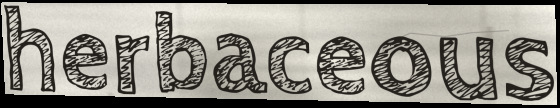
herbaceous